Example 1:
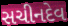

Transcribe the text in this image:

સચીનદેવ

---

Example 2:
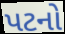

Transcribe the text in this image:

પટનો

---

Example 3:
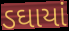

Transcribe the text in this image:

ડઘાયાં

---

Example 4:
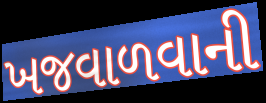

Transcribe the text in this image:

ખજવાળવાની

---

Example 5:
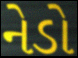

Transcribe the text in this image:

નેડો